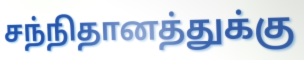
சந்நிதானத்துக்கு